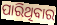
ପାରିଥିବାର